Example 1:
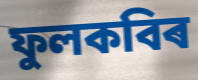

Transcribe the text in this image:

ফুলকবিৰ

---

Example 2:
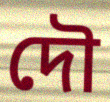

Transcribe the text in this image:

দৌ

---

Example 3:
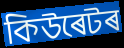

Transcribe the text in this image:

কিউৰেটৰ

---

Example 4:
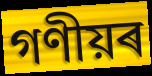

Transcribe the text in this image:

গণীয়ৰ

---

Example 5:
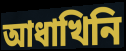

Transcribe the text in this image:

আধাখিনি